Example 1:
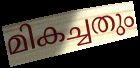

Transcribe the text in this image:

മികച്ചതും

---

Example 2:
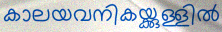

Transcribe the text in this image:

കാലയവനികയ്ക്കുള്ളിൽ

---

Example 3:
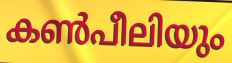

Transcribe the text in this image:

കൺപീലിയും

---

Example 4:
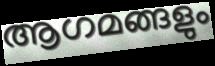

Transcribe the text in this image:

ആഗമങ്ങളും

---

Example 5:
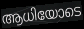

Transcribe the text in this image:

ആധിയോടെ